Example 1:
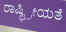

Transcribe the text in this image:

ರಾಷ್ಟ್ರೀಯತೆ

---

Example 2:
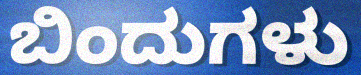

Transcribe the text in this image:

ಬಿಂದುಗಳು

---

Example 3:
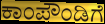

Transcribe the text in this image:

ಕಾಂಪೌಂಡಿಗೆ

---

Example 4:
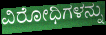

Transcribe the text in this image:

ವಿರೋಧಿಗಳನ್ನು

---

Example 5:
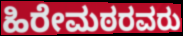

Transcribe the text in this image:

ಹಿರೇಮಠರವರು